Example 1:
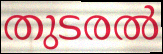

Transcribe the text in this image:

തുടരൽ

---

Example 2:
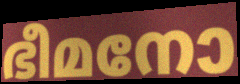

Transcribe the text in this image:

ഭീമനോ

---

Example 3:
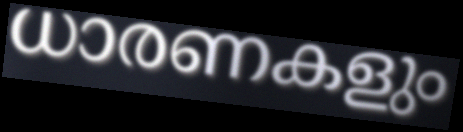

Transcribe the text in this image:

ധാരണകളും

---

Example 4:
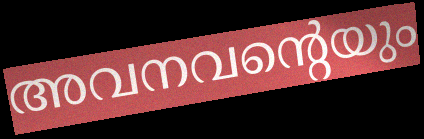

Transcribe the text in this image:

അവനവന്റെയും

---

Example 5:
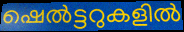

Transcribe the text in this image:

ഷെൽട്ടറുകളിൽ